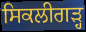
ਸਿਕਲੀਗੜ੍ਹ